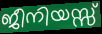
ജീനിയസ്സ്